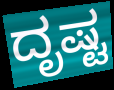
ದೃಷ್ಟ